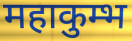
महाकुम्भ